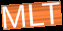
MLT